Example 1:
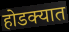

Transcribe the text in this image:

होडक्यात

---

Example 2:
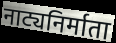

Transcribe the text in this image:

नाट्यनिर्माता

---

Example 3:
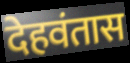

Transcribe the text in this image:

देहवंतास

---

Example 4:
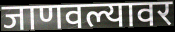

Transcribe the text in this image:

जाणवल्यावर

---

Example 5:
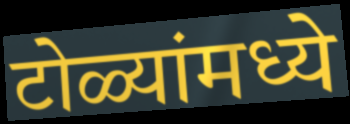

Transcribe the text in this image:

टोळ्यांमध्ये